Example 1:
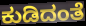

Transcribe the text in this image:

ಕುಡಿದಂತೆ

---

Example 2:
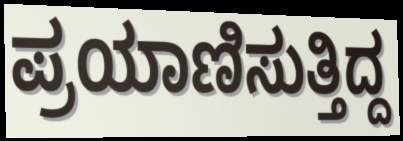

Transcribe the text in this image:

ಪ್ರಯಾಣಿಸುತ್ತಿದ್ದ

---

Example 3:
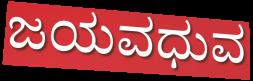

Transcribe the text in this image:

ಜಯವಧುವ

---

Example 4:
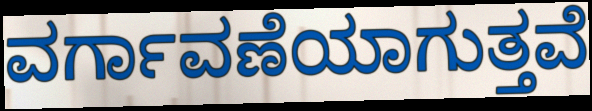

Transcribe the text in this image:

ವರ್ಗಾವಣೆಯಾಗುತ್ತವೆ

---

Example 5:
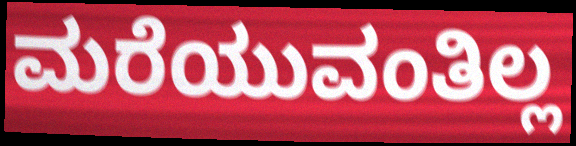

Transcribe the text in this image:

ಮರೆಯುವಂತಿಲ್ಲ